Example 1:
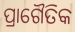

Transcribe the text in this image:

ପ୍ରାଗୈତିକ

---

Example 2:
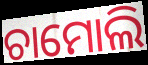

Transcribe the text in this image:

ଚାମୋଲି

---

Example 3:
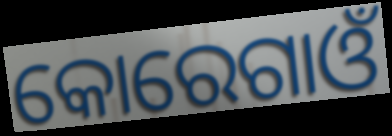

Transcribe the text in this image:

କୋରେଗାଓଁ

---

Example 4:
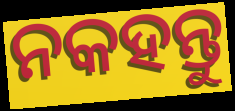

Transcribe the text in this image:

ନକହନ୍ତୁ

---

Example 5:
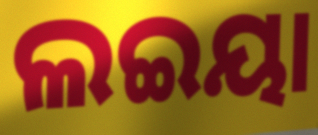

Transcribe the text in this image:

ଲଇୟା